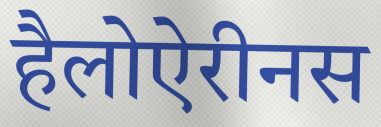
हैलोऐरीनस